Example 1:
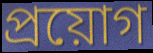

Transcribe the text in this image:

প্রয়োগ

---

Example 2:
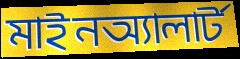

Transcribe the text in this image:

মাইনঅ্যালার্ট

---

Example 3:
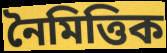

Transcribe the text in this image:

নৈমিত্তিক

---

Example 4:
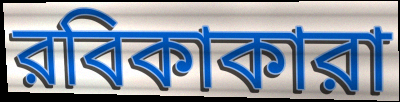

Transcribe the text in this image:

রবিকাকারা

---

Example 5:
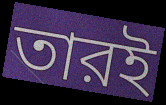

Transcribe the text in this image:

তারই